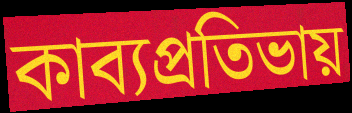
কাব্যপ্রতিভায়